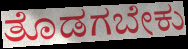
ತೊಡಗಬೇಕು